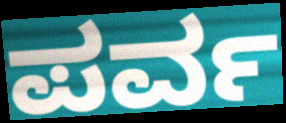
ಪರ್ವ